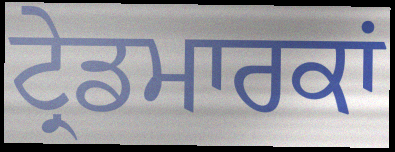
ਟ੍ਰੇਡਮਾਰਕਾਂ